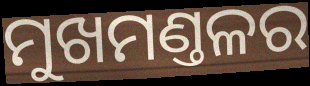
ମୁଖମଣ୍ତଳର